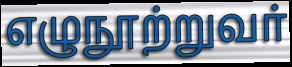
எழுநூற்றுவர்